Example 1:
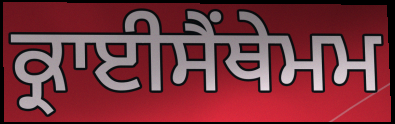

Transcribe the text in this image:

ਕ੍ਰਾਈਸੈਂਥੇਮਮ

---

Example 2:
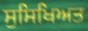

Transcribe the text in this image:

ਸੁਸਿਖਿਅਤ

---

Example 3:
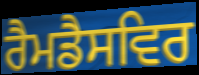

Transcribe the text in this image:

ਰੈਮਡੈਸਵਿਰ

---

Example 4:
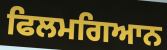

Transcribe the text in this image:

ਫਿਲਮਗਿਆਨ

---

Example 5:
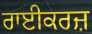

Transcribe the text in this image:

ਰਾਈਕਰਜ਼